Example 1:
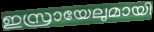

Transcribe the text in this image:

ഇസ്രായേലുമായി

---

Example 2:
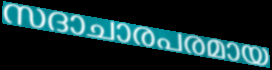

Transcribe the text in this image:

സദാചാരപരമായ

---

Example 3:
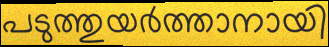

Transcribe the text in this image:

പടുത്തുയർത്താനായി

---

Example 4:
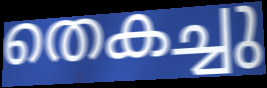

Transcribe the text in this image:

തെകച്ചു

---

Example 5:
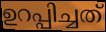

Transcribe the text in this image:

ഉറപ്പിച്ചത്